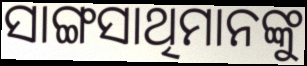
ସାଙ୍ଗସାଥିମାନଙ୍କୁ